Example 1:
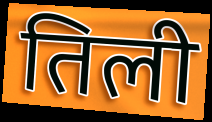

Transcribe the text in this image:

तिली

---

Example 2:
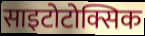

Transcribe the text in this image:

साइटोटोक्सिक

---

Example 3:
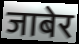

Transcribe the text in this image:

जाबेर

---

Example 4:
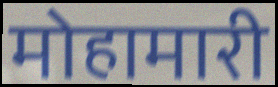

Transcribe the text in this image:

मोहामारी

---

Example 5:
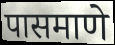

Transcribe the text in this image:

पासमाणे